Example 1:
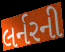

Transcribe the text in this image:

લર્નરની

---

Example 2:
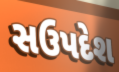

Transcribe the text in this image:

સઉપદેશ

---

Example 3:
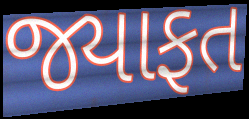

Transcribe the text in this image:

જ્યાફત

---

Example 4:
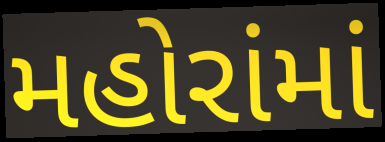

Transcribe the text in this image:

મહોરાંમાં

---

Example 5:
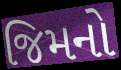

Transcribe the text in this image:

જિમનો